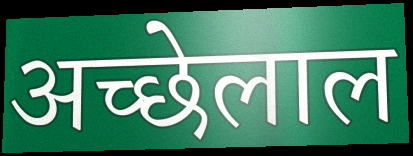
अच्छेलाल